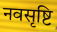
नवसृष्टि